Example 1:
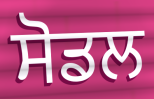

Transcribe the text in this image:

ਸੋਡਲ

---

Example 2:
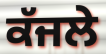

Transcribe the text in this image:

ਕੱਜਲੇ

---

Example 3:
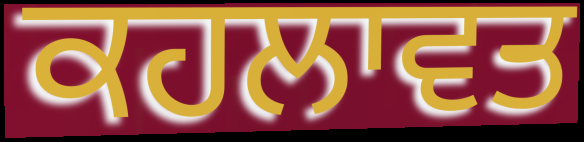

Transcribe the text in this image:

ਕਹਲਾਵਤ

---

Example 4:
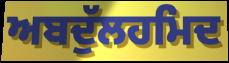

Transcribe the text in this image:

ਅਬਦੁੱਲਹਮਿਦ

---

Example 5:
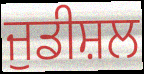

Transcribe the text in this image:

ਜੁਡੀਸ਼ਲ